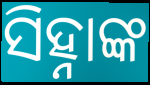
ସିହ୍ନାଙ୍କ